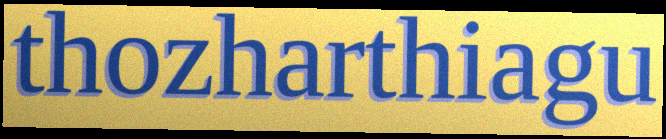
thozharthiagu